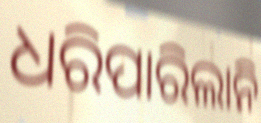
ଧରିପାରିଲାନି